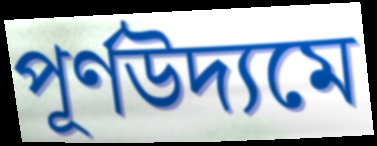
পূর্ণউদ্যমে